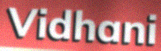
Vidhani